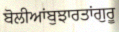
ਬੋਲੀਆਂਬੁਝਾਰਤਾਂਗੁਰੂ